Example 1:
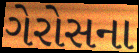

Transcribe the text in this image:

ગેરોસના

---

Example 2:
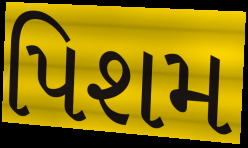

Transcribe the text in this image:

પિશમ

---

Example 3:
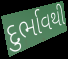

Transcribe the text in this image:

દુર્ભાવથી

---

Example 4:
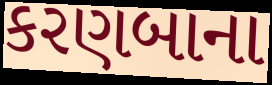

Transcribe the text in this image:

કરણબાના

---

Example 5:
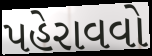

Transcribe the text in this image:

પહેરાવવો